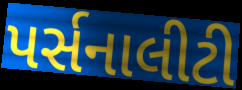
પર્સનાલીટી